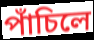
পাঁচিলে